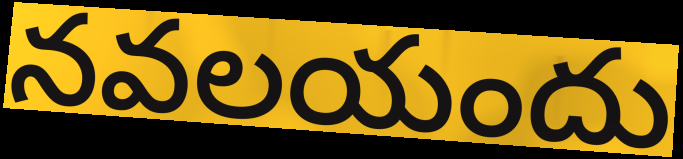
నవలయందు